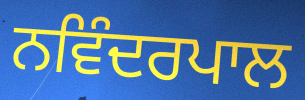
ਨਵਿੰਦਰਪਾਲ